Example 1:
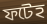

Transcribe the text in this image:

ফটেহ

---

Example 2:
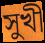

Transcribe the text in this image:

সুখী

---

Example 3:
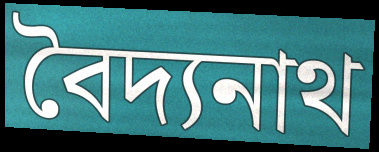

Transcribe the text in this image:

বৈদ্যনাথ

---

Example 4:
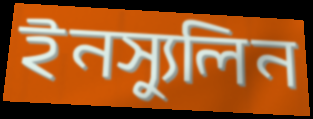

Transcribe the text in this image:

ইনস্যুলিন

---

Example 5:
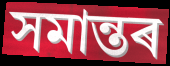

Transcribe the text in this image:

সমান্তৰ